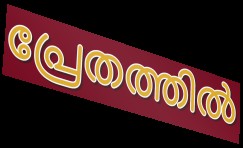
പ്രേതത്തിൽ